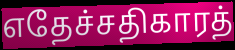
எதேச்சதிகாரத்